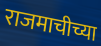
राजमाचीच्या